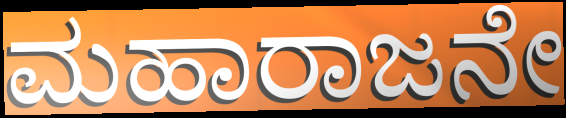
ಮಹಾರಾಜನೇ